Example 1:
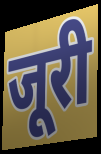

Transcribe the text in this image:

जूरी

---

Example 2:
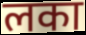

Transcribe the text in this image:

लका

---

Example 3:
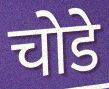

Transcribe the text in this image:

चोडे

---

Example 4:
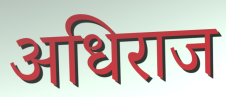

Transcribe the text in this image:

अधिराज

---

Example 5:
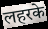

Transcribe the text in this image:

लहरके